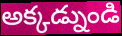
అక్కడ్నుండి